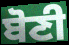
ਬੋਣੀ